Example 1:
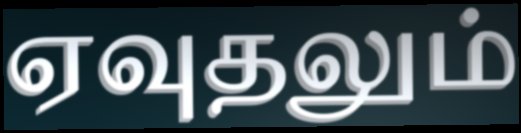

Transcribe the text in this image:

ஏவுதலும்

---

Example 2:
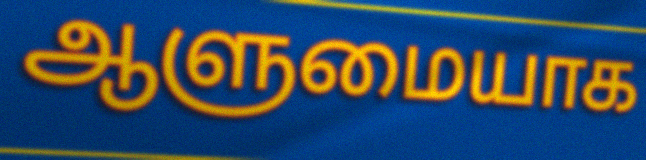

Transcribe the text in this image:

ஆளுமையாக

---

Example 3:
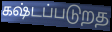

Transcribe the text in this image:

கஷ்டப்படுறத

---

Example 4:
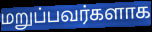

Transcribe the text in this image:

மறுப்பவர்களாக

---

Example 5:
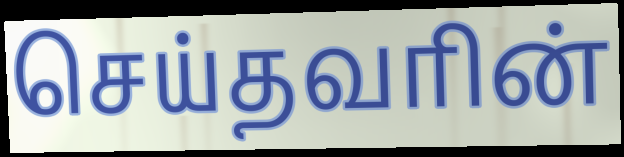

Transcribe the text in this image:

செய்தவரின்